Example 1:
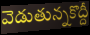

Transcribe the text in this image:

వెడుతున్నకొద్దీ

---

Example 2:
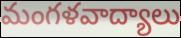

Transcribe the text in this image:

మంగళవాద్యాలు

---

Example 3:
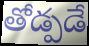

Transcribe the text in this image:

తోడ్పడే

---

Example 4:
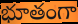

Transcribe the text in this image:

భూతంగా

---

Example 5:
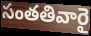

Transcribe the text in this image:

సంతతివారై